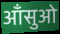
आँसुओ